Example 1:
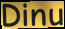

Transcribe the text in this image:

Dinu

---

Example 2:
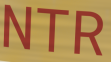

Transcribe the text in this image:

NTR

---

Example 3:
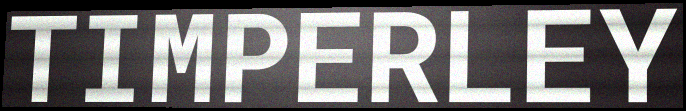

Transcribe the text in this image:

TIMPERLEY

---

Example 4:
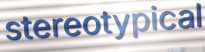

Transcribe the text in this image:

stereotypical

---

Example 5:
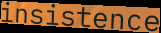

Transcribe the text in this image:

insistence